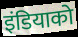
इंडियाको